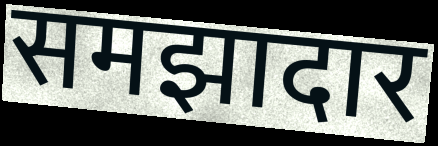
समझादार